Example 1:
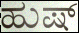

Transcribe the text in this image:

ಹುಷ್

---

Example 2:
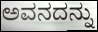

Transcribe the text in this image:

ಅವನದನ್ನು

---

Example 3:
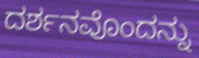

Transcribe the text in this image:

ದರ್ಶನವೊಂದನ್ನು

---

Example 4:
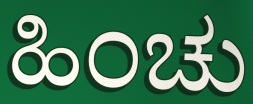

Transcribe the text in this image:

ಹಿಂಚು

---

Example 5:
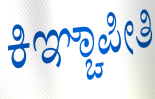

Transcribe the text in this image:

ಕಿಞ್ಚಾಪೀತಿ